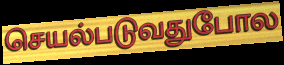
செயல்படுவதுபோல